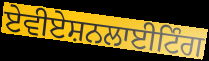
ਏਵੀਏਸ਼ਨਲਾਈਟਿੰਗ